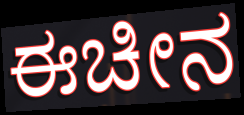
ಈಚೀನ